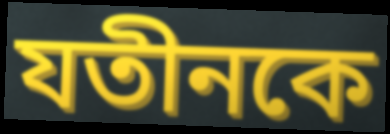
যতীনকে